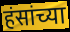
हंसांच्या